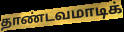
தாண்டவமாடிக்